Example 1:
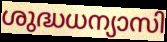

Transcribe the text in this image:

ശുദ്ധധന്യാസി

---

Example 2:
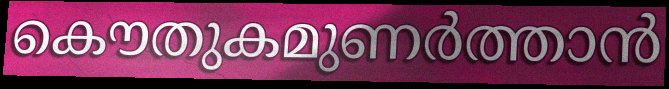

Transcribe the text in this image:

കൌതുകമുണർത്താൻ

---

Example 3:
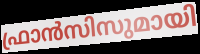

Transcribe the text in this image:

ഫ്രാൻസിസുമായി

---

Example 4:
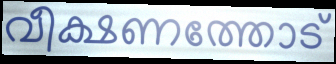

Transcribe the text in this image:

വീക്ഷണത്തോട്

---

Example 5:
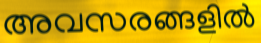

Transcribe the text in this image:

അവസരങ്ങളിൽ